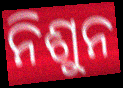
ନିଶୁନ